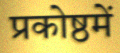
प्रकोष्ठमें